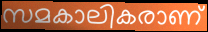
സമകാലികരാണ്